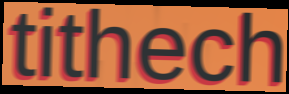
tithech